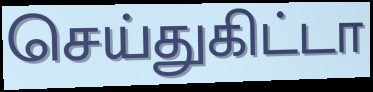
செய்துகிட்டா